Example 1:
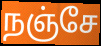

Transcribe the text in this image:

நஞ்சே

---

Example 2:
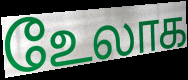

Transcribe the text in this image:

உேலாக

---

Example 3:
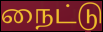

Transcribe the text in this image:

நைட்டு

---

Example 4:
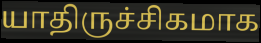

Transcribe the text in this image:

யாதிருச்சிகமாக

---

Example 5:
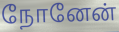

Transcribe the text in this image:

நோனேன்